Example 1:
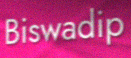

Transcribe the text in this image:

Biswadip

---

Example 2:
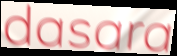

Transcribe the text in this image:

dasara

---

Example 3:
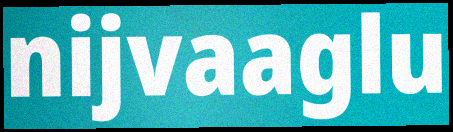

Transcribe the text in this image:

nijvaaglu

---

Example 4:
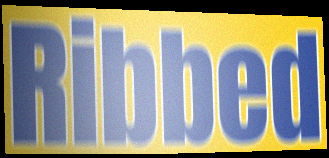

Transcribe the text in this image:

Ribbed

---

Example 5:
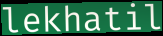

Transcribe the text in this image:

lekhatil